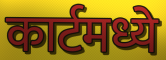
कार्टमध्ये